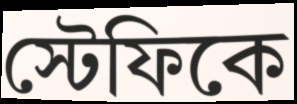
স্টেফিকে